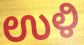
ಉಳಿ